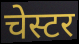
चेस्टर